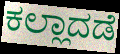
ಕಲ್ಲಾದಡೆ